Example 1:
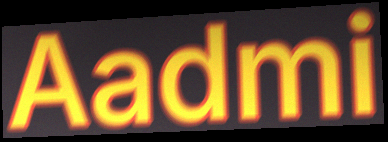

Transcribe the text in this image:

Aadmi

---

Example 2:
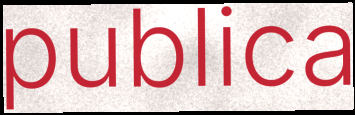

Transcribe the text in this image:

publica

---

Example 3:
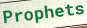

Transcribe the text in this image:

Prophets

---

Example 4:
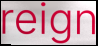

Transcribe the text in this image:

reign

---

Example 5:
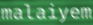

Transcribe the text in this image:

malaiyem